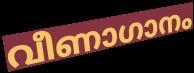
വീണാഗാനം